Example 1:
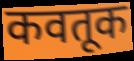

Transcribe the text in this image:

कवतूक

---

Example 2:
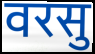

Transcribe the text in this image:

वरसु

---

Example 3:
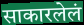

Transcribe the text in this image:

साकारलेलं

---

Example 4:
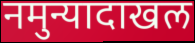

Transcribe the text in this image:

नमुन्यादाखल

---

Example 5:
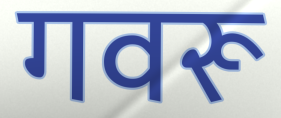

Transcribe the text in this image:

गवरू